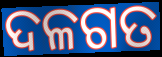
ଦଳଗତ